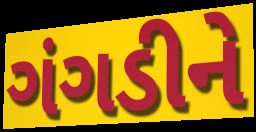
ગંગડીને